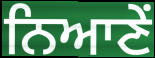
ਨਿਆਣੇਂ